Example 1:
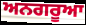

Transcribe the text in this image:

ਅਨਗਰੂਆ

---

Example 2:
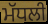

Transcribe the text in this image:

ਮੱਧਲੀ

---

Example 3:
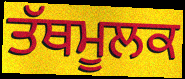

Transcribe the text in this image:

ਤੱਥਮੂਲਕ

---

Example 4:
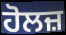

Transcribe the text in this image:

ਹੋਲਜ਼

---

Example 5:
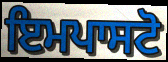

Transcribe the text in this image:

ਇਮਪਾਸਟੋ